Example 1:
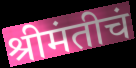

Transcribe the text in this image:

श्रीमंतीचं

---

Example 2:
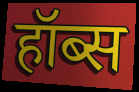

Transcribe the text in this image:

हॉब्स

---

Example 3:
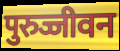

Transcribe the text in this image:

पुरुज्जीवन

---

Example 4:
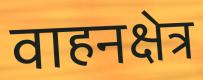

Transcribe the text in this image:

वाहनक्षेत्र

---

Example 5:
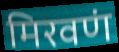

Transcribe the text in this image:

मिरवणं